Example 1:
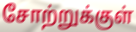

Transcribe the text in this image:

சோற்றுக்குள்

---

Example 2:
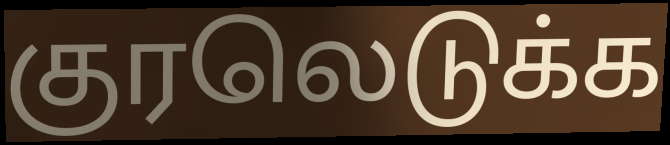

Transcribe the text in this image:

குரலெடுக்க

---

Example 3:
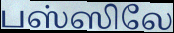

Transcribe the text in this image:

பஸ்ஸிலே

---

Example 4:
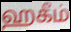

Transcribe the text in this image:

ஹகீம்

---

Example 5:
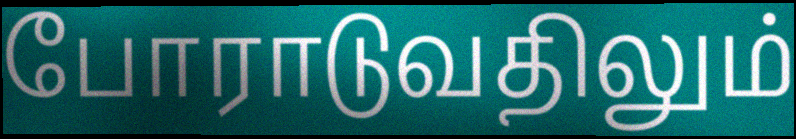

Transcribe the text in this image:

போராடுவதிலும்